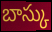
బాస్కు